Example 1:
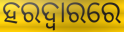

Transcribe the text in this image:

ହରଦ୍ୱାରରେ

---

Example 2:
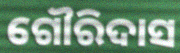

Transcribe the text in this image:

ଗୌରିଦାସ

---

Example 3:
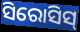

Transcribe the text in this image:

ସିରୋସିସ୍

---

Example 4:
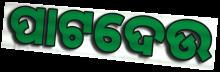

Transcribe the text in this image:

ପାଟଦେଉ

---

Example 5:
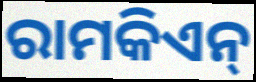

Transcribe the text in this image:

ରାମକିଏନ୍